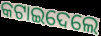
କଟାଇଦେଲେ